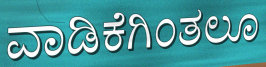
ವಾಡಿಕೆಗಿಂತಲೂ